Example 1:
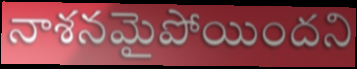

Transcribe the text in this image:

నాశనమైపోయిందని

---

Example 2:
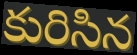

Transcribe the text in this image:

కురిసిన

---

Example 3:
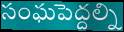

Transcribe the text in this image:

సంఘపెద్దల్ని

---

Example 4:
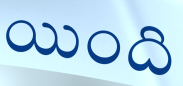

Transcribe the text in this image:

యింది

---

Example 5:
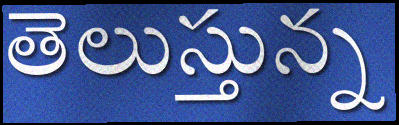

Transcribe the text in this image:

తెలుస్తున్న